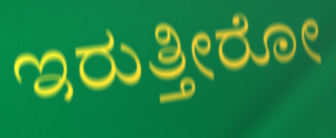
ಇರುತ್ತೀರೋ